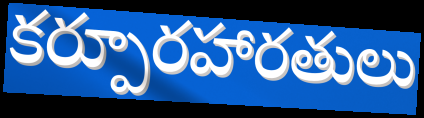
కర్పూరహారతులు